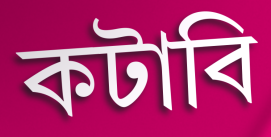
কটাবি